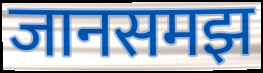
जानसमझ